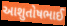
આશુતોષભાઈ